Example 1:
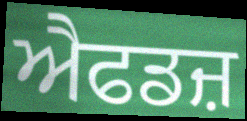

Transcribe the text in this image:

ਐਫਡਜ਼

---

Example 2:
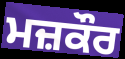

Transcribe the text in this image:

ਮਜ਼ਕੌਰ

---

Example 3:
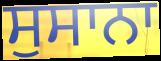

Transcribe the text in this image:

ਸੁਸਾਨਾ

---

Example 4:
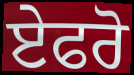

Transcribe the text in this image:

ਏਫਰੋ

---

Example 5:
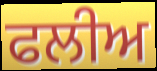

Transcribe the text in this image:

ਫਲੀਅ